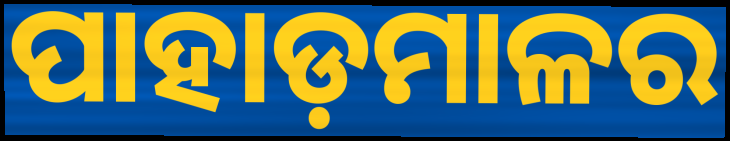
ପାହାଡ଼ମାଳର